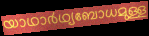
യാഥാർഥ്യബോധമുള്ള